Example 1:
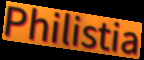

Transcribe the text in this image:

Philistia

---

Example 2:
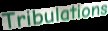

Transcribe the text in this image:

Tribulations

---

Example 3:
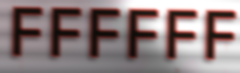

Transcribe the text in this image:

FFFFFF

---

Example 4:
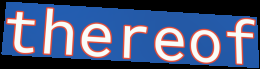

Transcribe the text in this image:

thereof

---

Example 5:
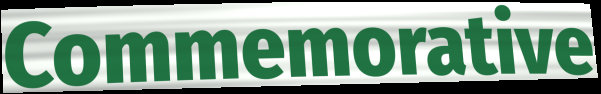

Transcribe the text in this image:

Commemorative